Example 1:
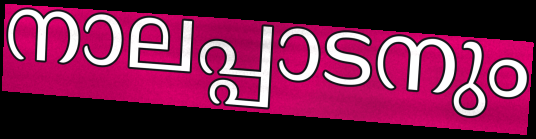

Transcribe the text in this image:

നാലപ്പാടനും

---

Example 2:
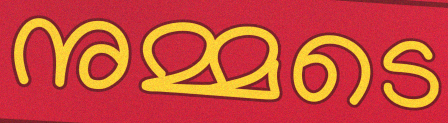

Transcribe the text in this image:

നുമ്മടെ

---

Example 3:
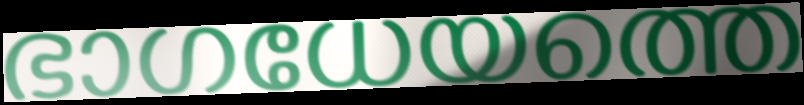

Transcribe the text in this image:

ഭാഗധേയത്തെ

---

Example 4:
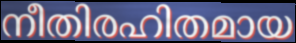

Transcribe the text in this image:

നീതിരഹിതമായ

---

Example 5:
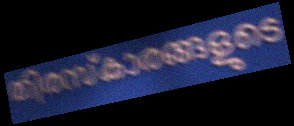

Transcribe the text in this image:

തിരസ്കാരങ്ങളുടെ